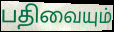
பதிவையும்